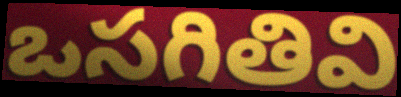
ఒసగితివి